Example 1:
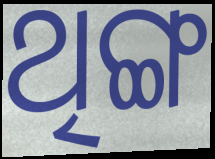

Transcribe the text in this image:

ଥିଙ୍ଗ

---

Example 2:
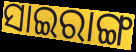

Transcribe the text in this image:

ସାଇରାଙ୍ଗ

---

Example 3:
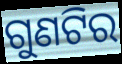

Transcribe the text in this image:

ଗୁଣଟିର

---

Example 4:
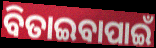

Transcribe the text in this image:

ବିତାଇବାପାଇଁ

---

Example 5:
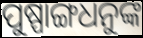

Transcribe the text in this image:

ପୁଷ୍ପାଙ୍ଗଧନୁଙ୍କ